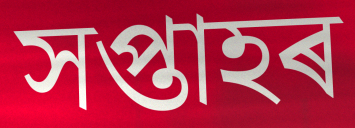
সপ্তাহৰ